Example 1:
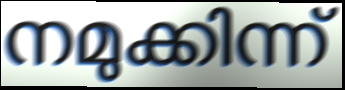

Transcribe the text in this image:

നമുക്കിന്ന്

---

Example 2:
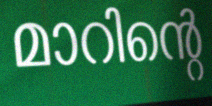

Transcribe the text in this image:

മാറിന്റെ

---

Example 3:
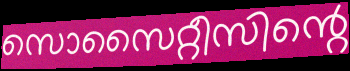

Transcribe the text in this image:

സൊസൈറ്റീസിന്റെ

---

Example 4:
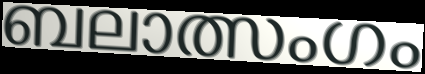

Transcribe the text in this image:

ബലാത്സംഗം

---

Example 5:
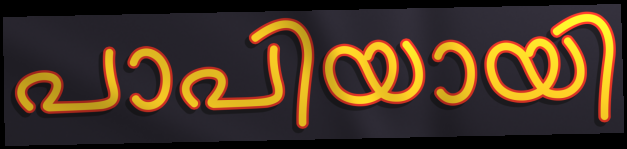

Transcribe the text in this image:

പാപിയായി